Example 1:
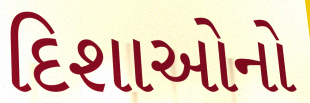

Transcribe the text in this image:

દિશાઓનો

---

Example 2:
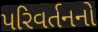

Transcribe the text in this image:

પરિવર્તનનો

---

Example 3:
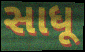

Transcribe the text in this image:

સાધૂ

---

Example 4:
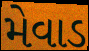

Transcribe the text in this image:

મેવાડ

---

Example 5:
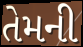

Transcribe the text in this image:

તેમની